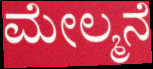
ಮೇಲ್ಮನೆ